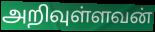
அறிவுள்ளவன்